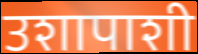
उशापाशी